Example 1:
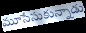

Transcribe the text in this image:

మూసేసుకున్నాడు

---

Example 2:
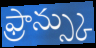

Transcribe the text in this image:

ఫ్రాన్స్కు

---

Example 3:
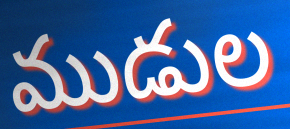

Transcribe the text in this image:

ముడుల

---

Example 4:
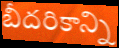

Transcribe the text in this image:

బీదరికాన్ని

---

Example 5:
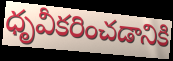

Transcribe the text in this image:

ధృవీకరించడానికి